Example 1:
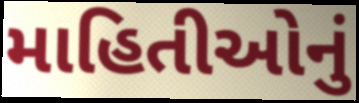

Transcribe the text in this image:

માહિતીઓનું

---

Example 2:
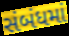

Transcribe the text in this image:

સંબંધમાં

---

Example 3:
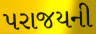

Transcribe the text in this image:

પરાજયની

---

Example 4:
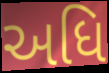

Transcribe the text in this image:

અધિ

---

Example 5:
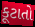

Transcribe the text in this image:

કૂટાતો